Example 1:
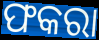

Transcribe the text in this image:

ଫକରା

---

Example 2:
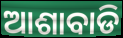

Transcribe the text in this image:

ଆଶାବାଡି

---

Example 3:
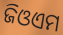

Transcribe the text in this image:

ଜିଓଏମ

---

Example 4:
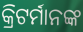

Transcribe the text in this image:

କ୍ରିଟର୍ମାନଙ୍କ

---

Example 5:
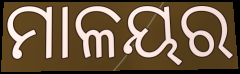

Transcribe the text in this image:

ମାଳୟର